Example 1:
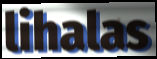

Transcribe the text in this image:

lihalas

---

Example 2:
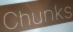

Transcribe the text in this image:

Chunks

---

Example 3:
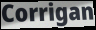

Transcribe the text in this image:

Corrigan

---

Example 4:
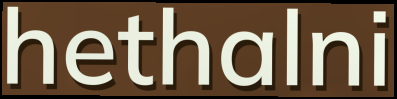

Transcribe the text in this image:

hethalni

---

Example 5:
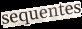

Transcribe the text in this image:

sequentes